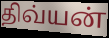
திவ்யன்